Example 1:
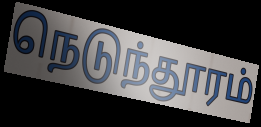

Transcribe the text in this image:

நெடுந்தூரம்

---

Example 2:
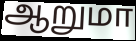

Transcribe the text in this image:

ஆறுமா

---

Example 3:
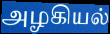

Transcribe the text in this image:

அழகியல்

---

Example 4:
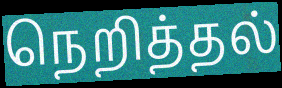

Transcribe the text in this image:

நெறித்தல்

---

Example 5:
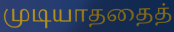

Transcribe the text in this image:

முடியாததைத்